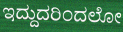
ಇದ್ದುದರಿಂದಲೋ